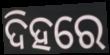
ଦିହରେ